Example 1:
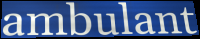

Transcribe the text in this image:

ambulant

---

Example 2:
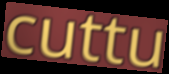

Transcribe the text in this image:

cuttu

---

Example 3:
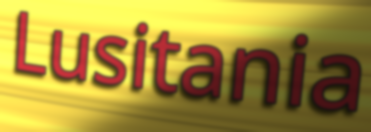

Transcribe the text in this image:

Lusitania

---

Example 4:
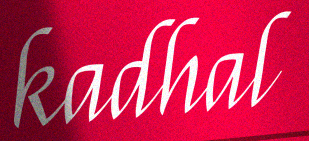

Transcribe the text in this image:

kadhal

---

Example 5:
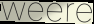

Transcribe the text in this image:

weere